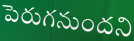
పెరుగనుందని